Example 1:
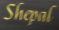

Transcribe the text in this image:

Shepal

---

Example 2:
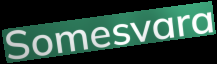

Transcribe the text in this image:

Somesvara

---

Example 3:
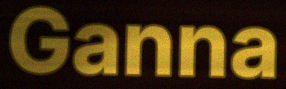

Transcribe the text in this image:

Ganna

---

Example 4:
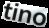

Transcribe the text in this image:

tino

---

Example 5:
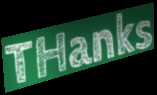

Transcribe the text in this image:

THanks